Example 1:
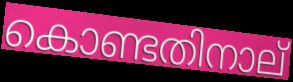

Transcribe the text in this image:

കൊണ്ടതിനാല്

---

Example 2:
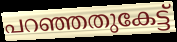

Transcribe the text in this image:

പറഞ്ഞതുകേട്ട്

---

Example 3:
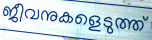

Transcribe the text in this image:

ജീവനുകളെടുത്ത്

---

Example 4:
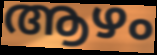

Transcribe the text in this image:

ആഴം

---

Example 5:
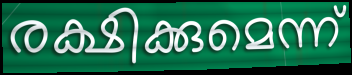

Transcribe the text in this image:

രക്ഷിക്കുമെന്ന്